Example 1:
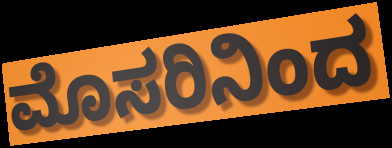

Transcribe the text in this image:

ಮೊಸರಿನಿಂದ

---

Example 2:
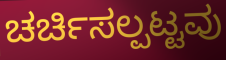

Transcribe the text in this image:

ಚರ್ಚಿಸಲ್ಪಟ್ಟವು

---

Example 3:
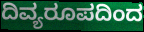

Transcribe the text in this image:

ದಿವ್ಯರೂಪದಿಂದ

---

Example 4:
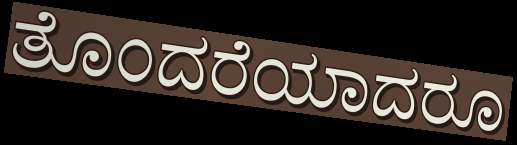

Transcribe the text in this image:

ತೊಂದರೆಯಾದರೂ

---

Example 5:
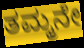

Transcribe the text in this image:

ತಮ್ಮನೇ